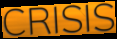
CRISIS